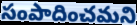
సంపాదించమని